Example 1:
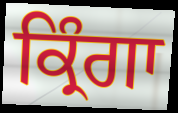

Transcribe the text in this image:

ਕ੍ਰਿੰਗਾ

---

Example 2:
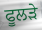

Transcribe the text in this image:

ਫੂਲੜੇ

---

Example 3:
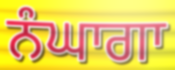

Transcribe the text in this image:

ਨੰਘਾਗਾ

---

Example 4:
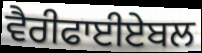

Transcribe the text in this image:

ਵੈਰੀਫਾਈਏਬਲ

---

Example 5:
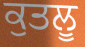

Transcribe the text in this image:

ਕੁਤਲੂ